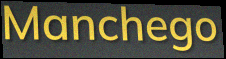
Manchego